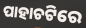
ପାହାଚଟିରେ